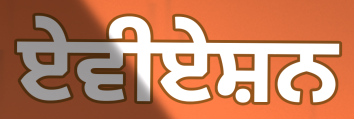
ਏਵੀਏਸ਼ਨ